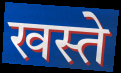
खस्ते